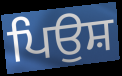
ਪਿਉਸ਼